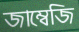
জাম্বেজি